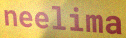
neelima